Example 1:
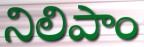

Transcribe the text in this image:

నిలిపాం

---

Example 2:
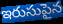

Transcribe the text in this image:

ఇరుసుపైన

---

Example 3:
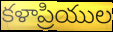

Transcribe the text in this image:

కళాప్రియుల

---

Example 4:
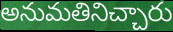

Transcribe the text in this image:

అనుమతినిచ్చారు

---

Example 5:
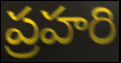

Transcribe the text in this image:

ప్రహరి